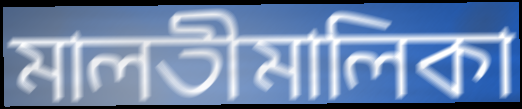
মালতীমালিকা